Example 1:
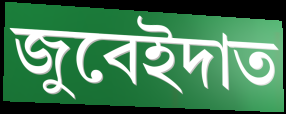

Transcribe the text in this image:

জুবেইদাত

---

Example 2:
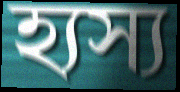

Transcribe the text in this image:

হ্যস্য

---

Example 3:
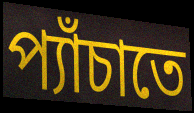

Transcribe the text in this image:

প্যাঁচাতে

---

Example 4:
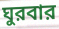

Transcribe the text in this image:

ঘুরবার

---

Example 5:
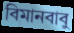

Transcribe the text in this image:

বিমানবাবু